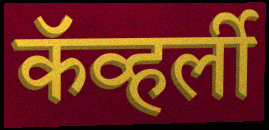
कॅव्हर्ली